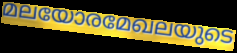
മലയോരമേഖലയുടെ